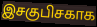
இசகுபிசகாக